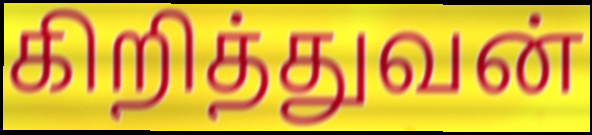
கிறித்துவன்